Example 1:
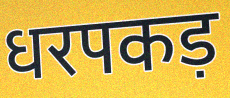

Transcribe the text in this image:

धरपकड़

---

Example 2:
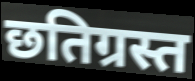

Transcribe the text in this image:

छतिग्रस्त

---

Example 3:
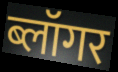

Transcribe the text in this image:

ब्लॉगर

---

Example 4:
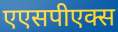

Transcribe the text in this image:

एएसपीएक्स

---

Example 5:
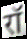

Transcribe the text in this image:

रॉ